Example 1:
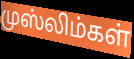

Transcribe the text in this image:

முஸ்லிம்கள்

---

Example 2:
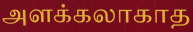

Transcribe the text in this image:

அளக்கலாகாத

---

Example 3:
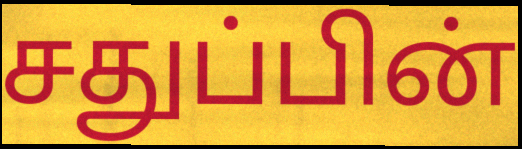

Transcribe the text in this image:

சதுப்பின்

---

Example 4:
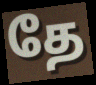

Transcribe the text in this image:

தே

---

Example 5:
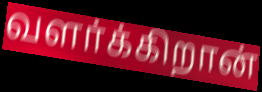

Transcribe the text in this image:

வளர்க்கிறான்